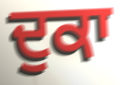
ਦੁਕਾ